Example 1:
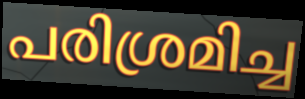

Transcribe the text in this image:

പരിശ്രമിച്ച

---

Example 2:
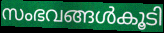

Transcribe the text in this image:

സംഭവങ്ങൾകൂടി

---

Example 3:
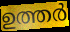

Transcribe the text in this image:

ഉത്തർ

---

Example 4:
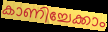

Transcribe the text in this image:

കാണിച്ചേക്കാം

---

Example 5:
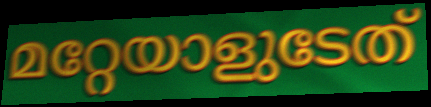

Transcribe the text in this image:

മറ്റേയാളുടേത്